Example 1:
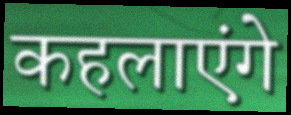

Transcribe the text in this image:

कहलाएंगे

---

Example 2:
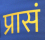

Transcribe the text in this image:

प्रासं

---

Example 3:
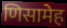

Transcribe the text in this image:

णिसामेह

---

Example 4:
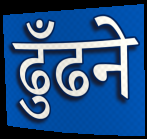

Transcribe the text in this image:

ढुँढने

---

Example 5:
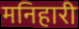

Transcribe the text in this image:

मनिहारी